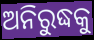
ଅନିରୁଦ୍ଧକୁ